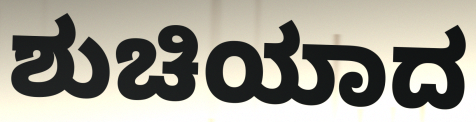
ಶುಚಿಯಾದ